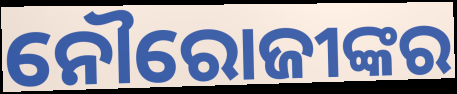
ନୌରୋଜୀଙ୍କର